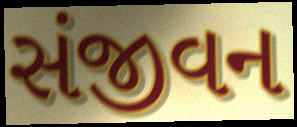
સંજીવન